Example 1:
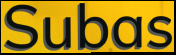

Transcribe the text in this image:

Subas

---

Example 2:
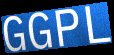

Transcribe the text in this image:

GGPL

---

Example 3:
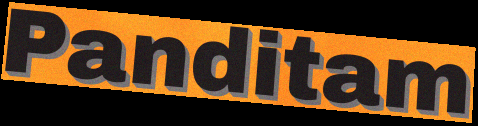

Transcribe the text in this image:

Panditam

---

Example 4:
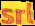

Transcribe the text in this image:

srl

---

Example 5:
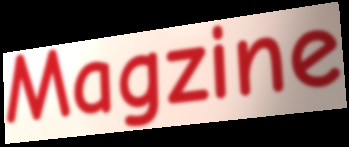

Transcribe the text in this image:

Magzine